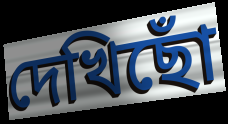
দেখিছোঁ